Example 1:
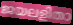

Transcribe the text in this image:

ജയലളിതാ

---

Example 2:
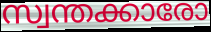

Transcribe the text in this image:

സ്വന്തക്കാരോ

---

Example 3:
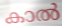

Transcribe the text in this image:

കാൽ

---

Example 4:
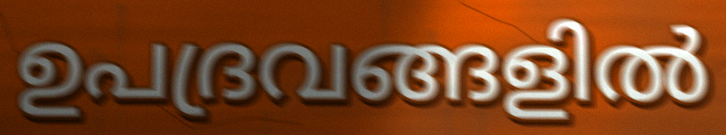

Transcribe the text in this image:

ഉപദ്രവങ്ങളിൽ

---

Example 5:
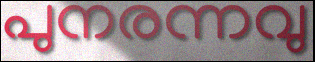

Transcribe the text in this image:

പുനരന്നവു